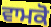
ਵਾਮਕੋ